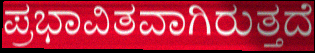
ಪ್ರಭಾವಿತವಾಗಿರುತ್ತದೆ